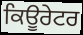
ਕਿਊਰੇਟਰ